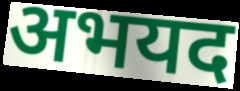
अभयद